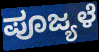
ಪೂಜ್ಯಳೆ